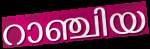
റാഞ്ചിയ